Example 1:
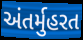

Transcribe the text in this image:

અંતર્મુહરત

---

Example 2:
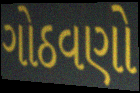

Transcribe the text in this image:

ગોઠવણો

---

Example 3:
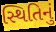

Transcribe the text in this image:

સ્થિતિનું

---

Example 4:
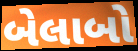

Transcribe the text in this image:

બેલાબો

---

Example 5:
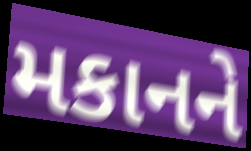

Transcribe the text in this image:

મકાનને